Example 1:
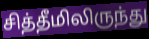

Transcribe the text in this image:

சித்தீமிலிருந்து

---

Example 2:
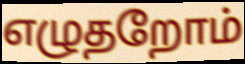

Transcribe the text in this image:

எழுதறோம்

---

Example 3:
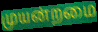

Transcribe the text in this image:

முயன்றமை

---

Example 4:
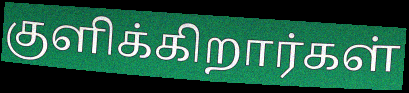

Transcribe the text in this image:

குளிக்கிறார்கள்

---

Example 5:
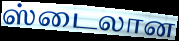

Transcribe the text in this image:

ஸ்டைலான